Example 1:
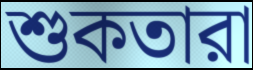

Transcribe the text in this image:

শুকতারা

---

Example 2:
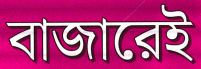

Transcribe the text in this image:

বাজারেই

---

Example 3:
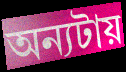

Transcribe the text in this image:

অন্যটায়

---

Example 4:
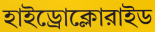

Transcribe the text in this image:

হাইড্রোক্লোরাইড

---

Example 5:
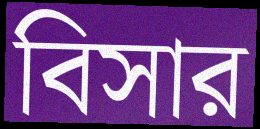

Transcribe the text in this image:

বিসার